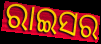
ରାଇସର